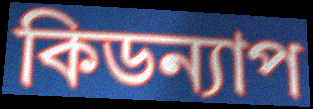
কিডন্যাপ